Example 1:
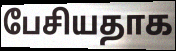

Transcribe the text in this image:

பேசியதாக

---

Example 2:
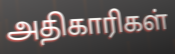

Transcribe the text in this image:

அதிகாரிகள்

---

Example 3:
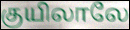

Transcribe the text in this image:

குயிலாலே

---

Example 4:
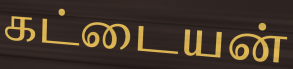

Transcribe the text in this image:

கட்டையன்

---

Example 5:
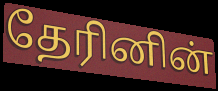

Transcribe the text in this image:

தேரினின்